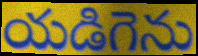
యడిగెను